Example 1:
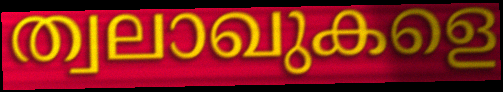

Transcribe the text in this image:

ത്വലാഖുകളെ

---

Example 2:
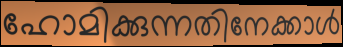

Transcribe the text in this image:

ഹോമിക്കുന്നതിനേക്കാൾ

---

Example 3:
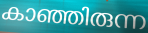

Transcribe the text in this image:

കാഞ്ഞിരുന്ന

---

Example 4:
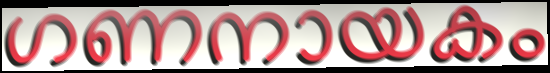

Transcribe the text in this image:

ഗണനായകം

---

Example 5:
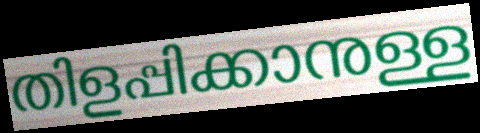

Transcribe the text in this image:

തിളപ്പിക്കാനുള്ള